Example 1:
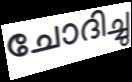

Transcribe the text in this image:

ചോദിച്ചു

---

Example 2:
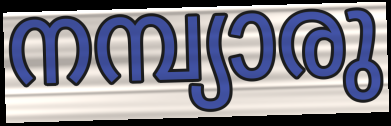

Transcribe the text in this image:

നമ്പ്യാരു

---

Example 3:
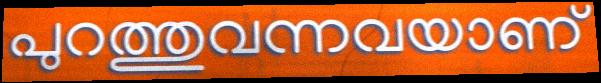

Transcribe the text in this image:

പുറത്തുവന്നവയാണ്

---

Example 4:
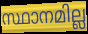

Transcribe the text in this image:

സ്ഥാനമില്ല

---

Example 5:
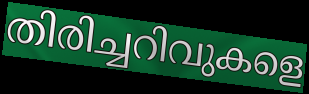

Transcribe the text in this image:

തിരിച്ചറിവുകളെ